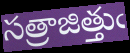
సత్రాజిత్తుఁ